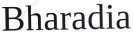
Bharadia